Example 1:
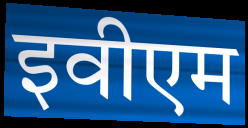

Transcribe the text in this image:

इवीएम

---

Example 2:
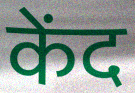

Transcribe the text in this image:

केंद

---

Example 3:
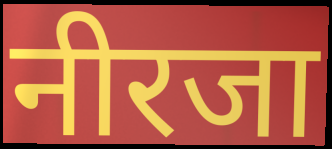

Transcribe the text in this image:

नीरजा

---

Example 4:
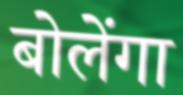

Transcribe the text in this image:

बोलेंगा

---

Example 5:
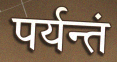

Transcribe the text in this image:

पर्यन्तं